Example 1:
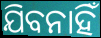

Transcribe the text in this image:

ଯିବନାହିଁ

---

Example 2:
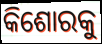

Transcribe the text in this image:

କିଶୋରକୁ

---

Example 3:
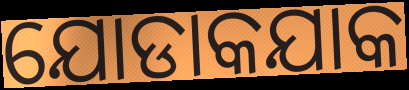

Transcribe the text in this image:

ଯୋଡାକଯାକ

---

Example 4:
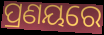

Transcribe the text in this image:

ପ୍ରଣୟରେ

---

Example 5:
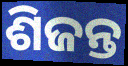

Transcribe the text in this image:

ଶିଜନ୍ତ